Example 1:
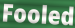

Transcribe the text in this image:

Fooled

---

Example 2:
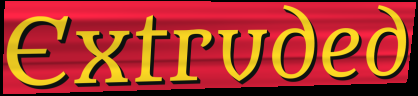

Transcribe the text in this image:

Extruded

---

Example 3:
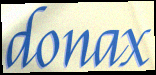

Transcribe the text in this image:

donax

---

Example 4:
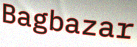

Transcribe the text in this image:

Bagbazar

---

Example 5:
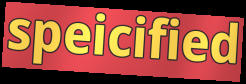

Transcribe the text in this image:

speicified